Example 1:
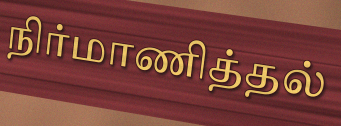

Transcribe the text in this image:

நிர்மாணித்தல்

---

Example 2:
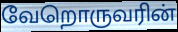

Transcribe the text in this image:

வேறொருவரின்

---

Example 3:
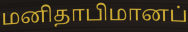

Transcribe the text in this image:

மனிதாபிமானப்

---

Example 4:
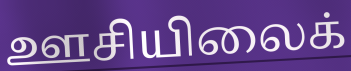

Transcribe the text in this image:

ஊசியிலைக்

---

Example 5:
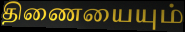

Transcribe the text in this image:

திணையையும்